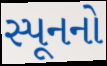
સ્પૂનનો